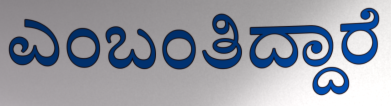
ಎಂಬಂತಿದ್ದಾರೆ